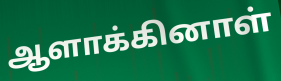
ஆளாக்கினாள்